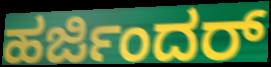
ಹರ್ಜಿಂದರ್